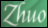
Zhuo